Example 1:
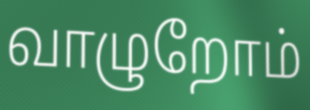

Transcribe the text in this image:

வாழுறோம்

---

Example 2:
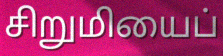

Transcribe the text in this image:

சிறுமியைப்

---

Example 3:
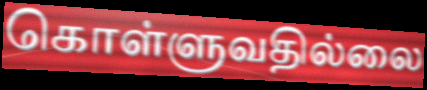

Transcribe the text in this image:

கொள்ளுவதில்லை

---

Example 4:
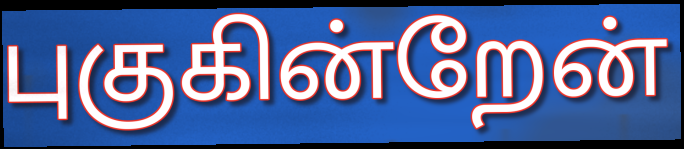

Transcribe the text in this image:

புகுகின்றேன்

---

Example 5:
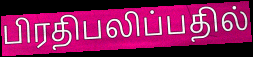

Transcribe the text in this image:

பிரதிபலிப்பதில்